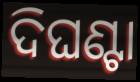
ଦିଘଣ୍ଟା